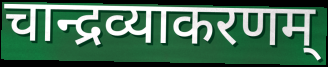
चान्द्रव्याकरणम्